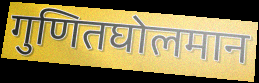
गुणितघोलमान